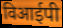
विआईपी